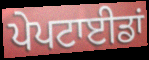
ਪੇਪਟਾਈਡਾਂ